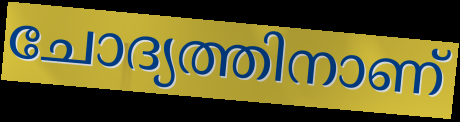
ചോദ്യത്തിനാണ്